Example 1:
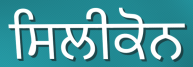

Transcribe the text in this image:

ਸਿਲੀਕੋਨ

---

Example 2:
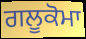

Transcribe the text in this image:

ਗਲੂਕੋਮਾ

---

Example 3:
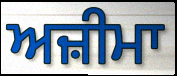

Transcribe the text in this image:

ਅਜ਼ੀਮਾ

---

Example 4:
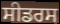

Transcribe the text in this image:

ਸੀਡਰਸ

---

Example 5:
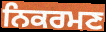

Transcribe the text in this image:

ਨਿਕਰਮਣ